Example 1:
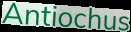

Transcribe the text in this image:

Antiochus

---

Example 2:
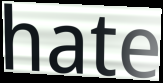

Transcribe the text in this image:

hate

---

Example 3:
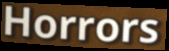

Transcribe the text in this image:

Horrors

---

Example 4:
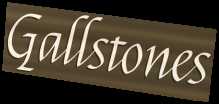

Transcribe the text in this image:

Gallstones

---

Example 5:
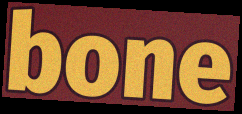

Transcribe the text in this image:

bone